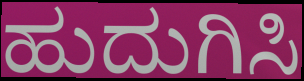
ಹುದುಗಿಸಿ